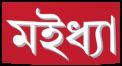
মইধ্যা